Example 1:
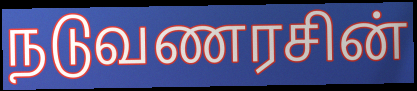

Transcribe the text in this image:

நடுவணரசின்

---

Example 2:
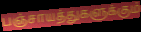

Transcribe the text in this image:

பஞ்சாயத்துகளுக்கும்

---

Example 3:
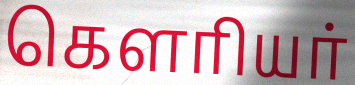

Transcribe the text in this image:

கௌரியர்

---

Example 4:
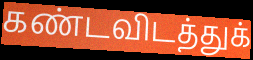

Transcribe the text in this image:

கண்டவிடத்துக்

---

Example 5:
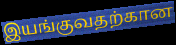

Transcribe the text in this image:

இயங்குவதற்கான